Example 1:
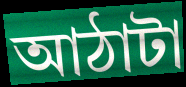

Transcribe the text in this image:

আঠাটা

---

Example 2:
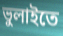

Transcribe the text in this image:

ভুলাইতে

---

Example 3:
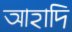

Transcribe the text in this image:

আহাদি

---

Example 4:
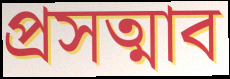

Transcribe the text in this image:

প্রসত্মাব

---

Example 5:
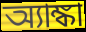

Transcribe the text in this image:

অ্যাঙ্কা